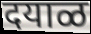
दयाळ